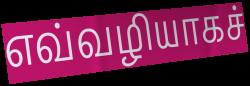
எவ்வழியாகச்